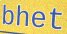
bhet